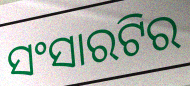
ସଂସାରଟିର